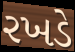
રખડે